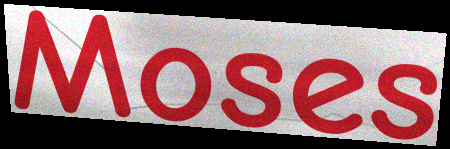
Moses